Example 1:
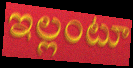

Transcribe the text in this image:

ఇల్లంటూ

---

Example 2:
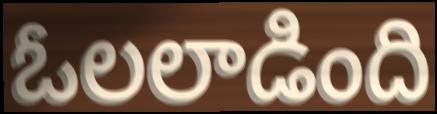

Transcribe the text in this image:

ఓలలాడింది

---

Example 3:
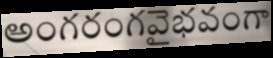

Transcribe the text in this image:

అంగరంగవైభవంగా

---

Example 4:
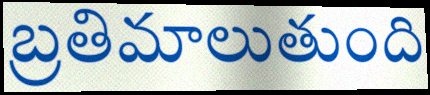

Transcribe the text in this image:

బ్రతిమాలుతుంది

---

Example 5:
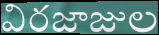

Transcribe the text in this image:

విరజాజుల